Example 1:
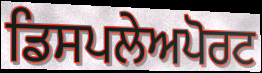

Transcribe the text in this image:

ਡਿਸਪਲੇਅਪੋਰਟ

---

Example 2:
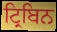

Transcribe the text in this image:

ਟ੍ਰਿਬਿਨ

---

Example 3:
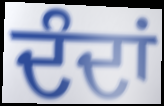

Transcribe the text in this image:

ਦੰਦਾਂ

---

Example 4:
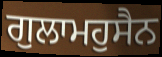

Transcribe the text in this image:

ਗੁਲਾਮਹੁਸੈਨ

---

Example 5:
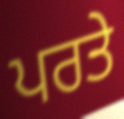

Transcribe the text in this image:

ਪਰਤੇ